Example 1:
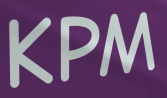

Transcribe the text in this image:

KPM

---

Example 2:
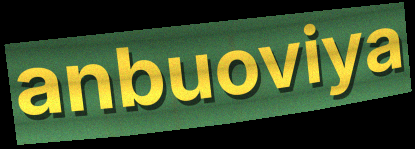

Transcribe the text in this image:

anbuoviya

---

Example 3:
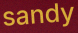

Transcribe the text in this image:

sandy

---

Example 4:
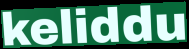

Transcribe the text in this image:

keliddu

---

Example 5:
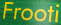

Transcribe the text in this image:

Frooti